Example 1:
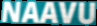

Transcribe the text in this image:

NAAVU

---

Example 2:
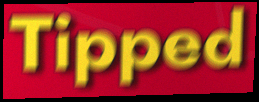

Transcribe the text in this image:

Tipped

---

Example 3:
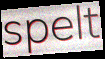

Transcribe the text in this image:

spelt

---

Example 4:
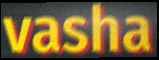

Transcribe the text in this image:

vasha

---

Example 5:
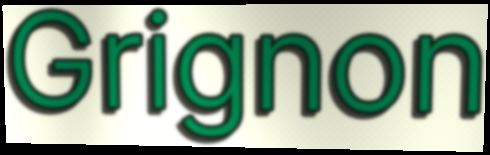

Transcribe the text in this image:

Grignon